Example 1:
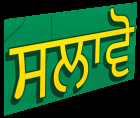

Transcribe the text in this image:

ਸਲਾਵੋ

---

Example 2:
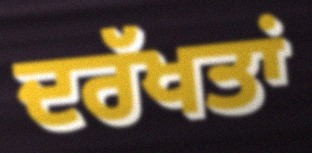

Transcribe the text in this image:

ਦਰੱਖਤਾਂ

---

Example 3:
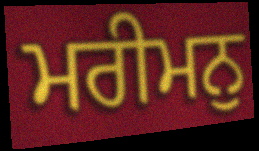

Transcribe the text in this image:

ਮਰੀਮਨੁ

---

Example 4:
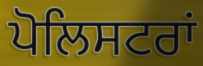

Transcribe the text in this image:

ਪੋਲਿਸਟਰਾਂ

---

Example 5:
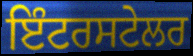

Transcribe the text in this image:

ਇੰਟਰਸਟੇਲਰ